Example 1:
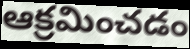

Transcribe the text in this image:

ఆక్రమించడం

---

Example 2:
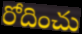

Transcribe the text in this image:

రోదించు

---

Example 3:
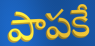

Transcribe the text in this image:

పాపకే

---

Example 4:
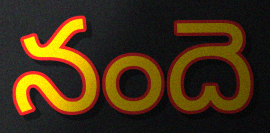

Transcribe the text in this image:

నందె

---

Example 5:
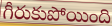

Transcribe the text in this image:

గీరుకుపోయింది